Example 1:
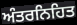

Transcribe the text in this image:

ਅੰਤਰਨਿਹਿਤ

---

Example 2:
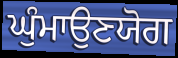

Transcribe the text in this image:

ਘੁੰਮਾਉਣਯੋਗ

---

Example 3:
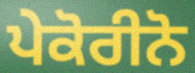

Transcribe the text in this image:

ਪੇਕੋਰੀਨੋ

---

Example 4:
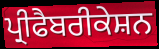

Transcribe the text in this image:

ਪ੍ਰੀਫੈਬਰੀਕੇਸ਼ਨ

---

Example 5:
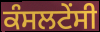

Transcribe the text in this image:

ਕੰਸਲਟੇਂਸੀ